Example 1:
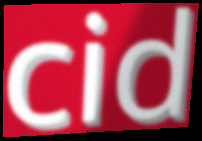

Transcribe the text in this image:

cid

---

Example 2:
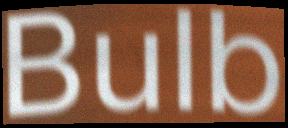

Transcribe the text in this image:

Bulb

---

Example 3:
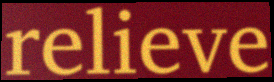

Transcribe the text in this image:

relieve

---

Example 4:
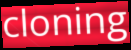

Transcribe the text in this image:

cloning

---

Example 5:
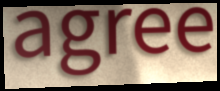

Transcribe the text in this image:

agree